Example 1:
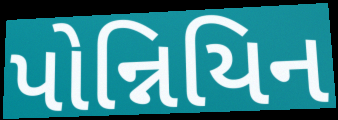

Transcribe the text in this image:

પોન્નિયિન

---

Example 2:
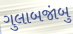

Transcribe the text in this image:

ગુલાબજાંબુ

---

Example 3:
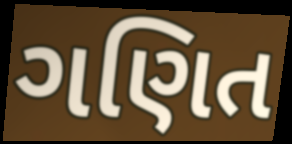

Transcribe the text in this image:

ગણિત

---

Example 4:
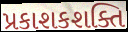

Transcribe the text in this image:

પ્રકાશકશક્તિ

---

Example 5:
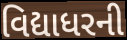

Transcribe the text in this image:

વિદ્યાધરની